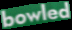
bowled